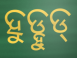
ହୁଡ୍ହୁଡ୍